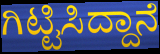
ಗಿಟ್ಟಿಸಿದ್ದಾನೆ